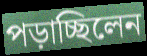
পড়াচ্ছিলেন